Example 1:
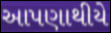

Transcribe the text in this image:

આપણાથીયે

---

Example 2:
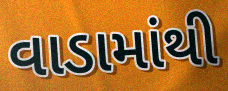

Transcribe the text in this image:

વાડામાંથી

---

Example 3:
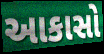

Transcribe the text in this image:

આકાસો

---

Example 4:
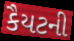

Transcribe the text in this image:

કૈયટની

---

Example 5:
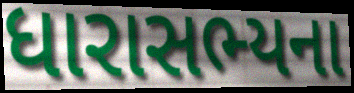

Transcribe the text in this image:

ધારાસભ્યના